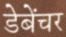
डेबेंचर